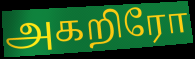
அகறிரோ